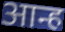
आन्ह